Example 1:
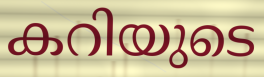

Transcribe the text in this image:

കറിയുടെ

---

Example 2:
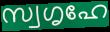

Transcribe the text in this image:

സ്വഗൃഹേ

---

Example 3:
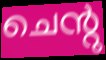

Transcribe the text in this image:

ചെന്റു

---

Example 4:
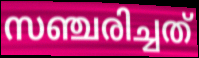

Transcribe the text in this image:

സഞ്ചരിച്ചത്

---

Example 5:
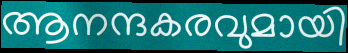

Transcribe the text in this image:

ആനന്ദകരവുമായി